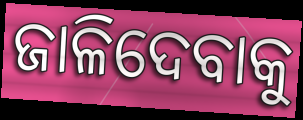
ଜାଳିଦେବାକୁ